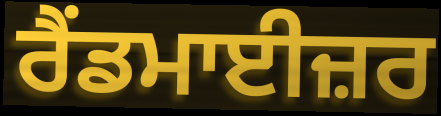
ਰੈਂਡਮਾਈਜ਼ਰ